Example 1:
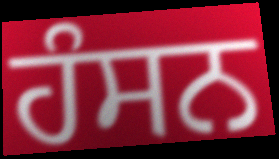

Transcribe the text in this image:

ਹੰਸਨ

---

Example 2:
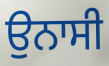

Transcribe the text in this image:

ਉਨਾਸੀ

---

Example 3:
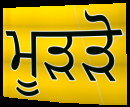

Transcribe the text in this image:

ਮੂੜੜੋ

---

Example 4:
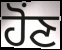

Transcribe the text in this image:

ਹੋਂਣ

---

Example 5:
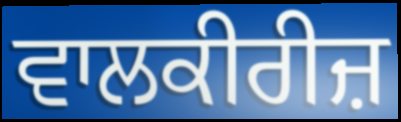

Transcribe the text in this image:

ਵਾਲਕੀਰੀਜ਼